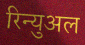
रिन्युअल